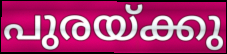
പുരയ്ക്കു